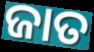
ଜାତ